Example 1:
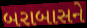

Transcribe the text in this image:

બરાબાસને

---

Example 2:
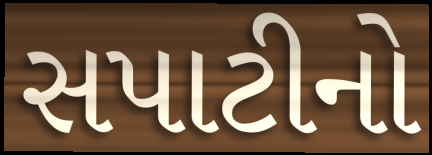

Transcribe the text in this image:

સપાટીનો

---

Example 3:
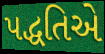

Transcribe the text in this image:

પદ્ધતિએ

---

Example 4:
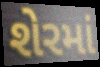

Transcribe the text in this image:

શેરમાં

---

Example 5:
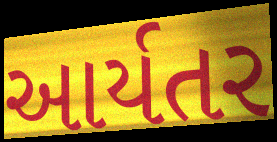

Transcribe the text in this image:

આર્યતર